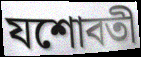
যশোবতী